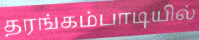
தரங்கம்பாடியில்